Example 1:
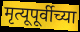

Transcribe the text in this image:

मृत्यूपूर्वीच्या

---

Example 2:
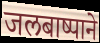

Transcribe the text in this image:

जलबाष्पाने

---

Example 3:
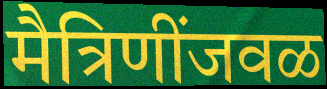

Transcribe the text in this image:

मैत्रिणींजवळ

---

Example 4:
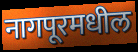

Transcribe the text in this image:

नागपूरमधील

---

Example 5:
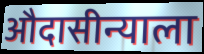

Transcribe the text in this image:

औदासीन्याला